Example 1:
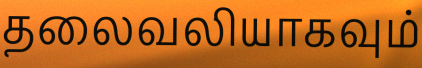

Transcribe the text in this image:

தலைவலியாகவும்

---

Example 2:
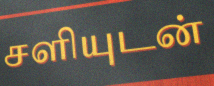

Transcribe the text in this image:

சளியுடன்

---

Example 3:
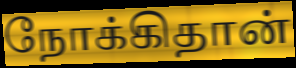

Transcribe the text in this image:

நோக்கிதான்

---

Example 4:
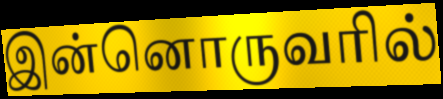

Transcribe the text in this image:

இன்னொருவரில்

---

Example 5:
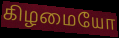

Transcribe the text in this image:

கிழமையோ